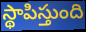
స్థాపిస్తుంది